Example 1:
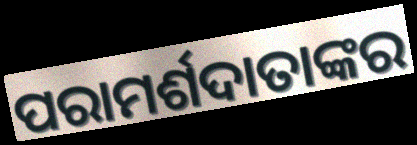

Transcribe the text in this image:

ପରାମର୍ଶଦାତାଙ୍କର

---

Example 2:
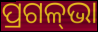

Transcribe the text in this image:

ପ୍ରଗଳ୍‌ଭା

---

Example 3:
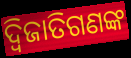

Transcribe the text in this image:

ଦ୍ୱିଜାତିଗଣଙ୍କ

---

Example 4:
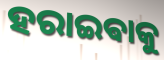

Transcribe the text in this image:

ହରାଇଵାକୁ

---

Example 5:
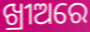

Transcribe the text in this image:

ଖ୍ରୀଅରେ